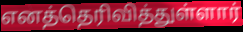
எனத்தெரிவித்துள்ளார்